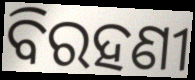
ବିରହଣୀ